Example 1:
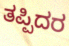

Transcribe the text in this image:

ತಪ್ಪಿದರ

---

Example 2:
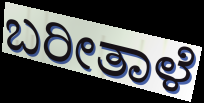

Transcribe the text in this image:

ಬರೀತಾಳೆ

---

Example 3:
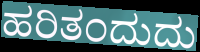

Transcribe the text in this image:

ಹರಿತಂದುದು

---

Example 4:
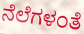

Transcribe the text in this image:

ನೆಲೆಗಳಂತೆ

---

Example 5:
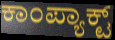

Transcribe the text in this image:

ಕಾಂಪ್ಯಾಕ್ಟ್